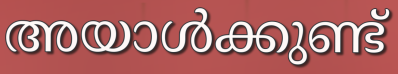
അയാൾക്കുണ്ട്